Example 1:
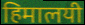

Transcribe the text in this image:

हिमालयी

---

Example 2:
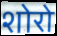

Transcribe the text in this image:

शोरो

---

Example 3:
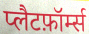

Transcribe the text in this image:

प्लैटफ़ॉर्म्स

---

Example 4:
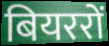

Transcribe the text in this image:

बियररों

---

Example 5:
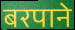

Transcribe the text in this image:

बरपाने